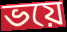
ভয়ে